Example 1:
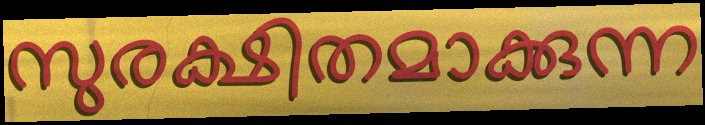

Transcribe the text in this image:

സുരക്ഷിതമാക്കുന്ന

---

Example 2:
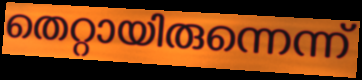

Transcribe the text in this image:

തെറ്റായിരുന്നെന്ന്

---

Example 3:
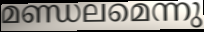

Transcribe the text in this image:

മണ്ഡലമെന്നു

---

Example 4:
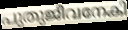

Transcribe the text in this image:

പുതുജീവനേകി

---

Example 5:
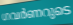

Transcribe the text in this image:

ഗവർണറുടെ